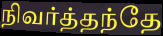
நிவர்த்தந்தே